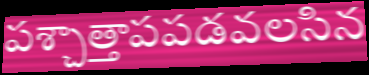
పశ్చాత్తాపపడవలసిన